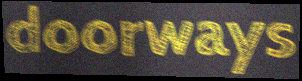
doorways